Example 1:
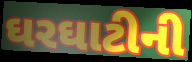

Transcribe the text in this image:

ઘરઘાટીની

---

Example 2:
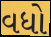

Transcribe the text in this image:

વધો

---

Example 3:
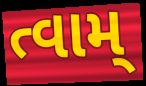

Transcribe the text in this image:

ત્વામ્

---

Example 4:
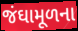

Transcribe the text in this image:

જંઘામૂળના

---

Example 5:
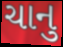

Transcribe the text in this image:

ચાનુ